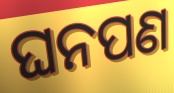
ଘନପଣ